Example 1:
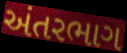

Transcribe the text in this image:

અંતરભાગ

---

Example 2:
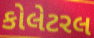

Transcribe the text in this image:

કોલેટરલ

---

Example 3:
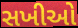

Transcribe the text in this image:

સખીઓ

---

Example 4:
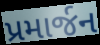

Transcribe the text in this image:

પ્રમાર્જન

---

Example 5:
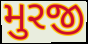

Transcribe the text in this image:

મુરજી